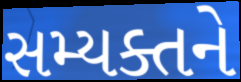
સમ્યક્તને